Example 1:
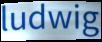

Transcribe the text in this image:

ludwig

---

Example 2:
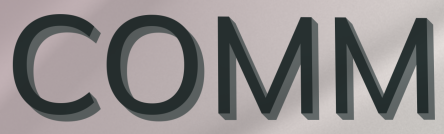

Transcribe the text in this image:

COMM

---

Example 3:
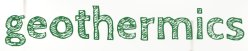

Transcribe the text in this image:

geothermics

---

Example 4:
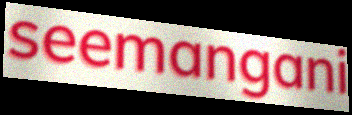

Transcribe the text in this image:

seemangani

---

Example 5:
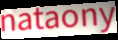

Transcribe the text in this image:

nataony